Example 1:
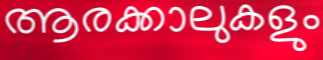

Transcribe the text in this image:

ആരക്കാലുകളും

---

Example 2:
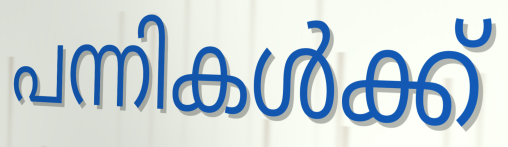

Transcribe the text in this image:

പന്നികൾക്ക്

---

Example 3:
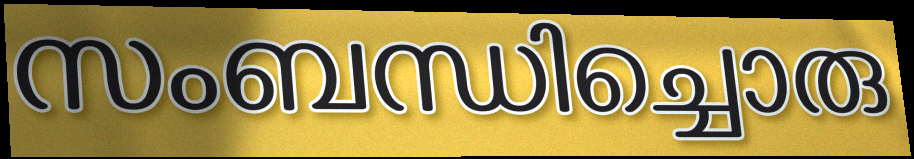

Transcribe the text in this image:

സംബന്ധിച്ചൊരു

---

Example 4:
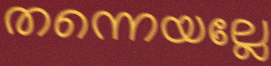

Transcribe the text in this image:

തന്നെയല്ലേ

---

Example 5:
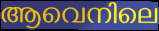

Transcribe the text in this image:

ആവെനിലെ